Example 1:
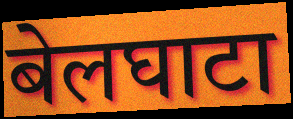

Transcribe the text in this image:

बेलघाटा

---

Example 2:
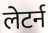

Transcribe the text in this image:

लेटर्न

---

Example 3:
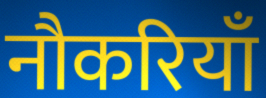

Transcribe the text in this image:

नौकरियाँ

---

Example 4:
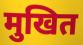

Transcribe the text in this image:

मुखित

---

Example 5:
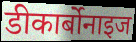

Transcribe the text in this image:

डीकार्बोनाइज